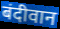
बंदीवान